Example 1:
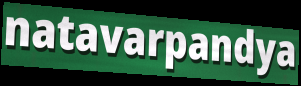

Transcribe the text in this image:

natavarpandya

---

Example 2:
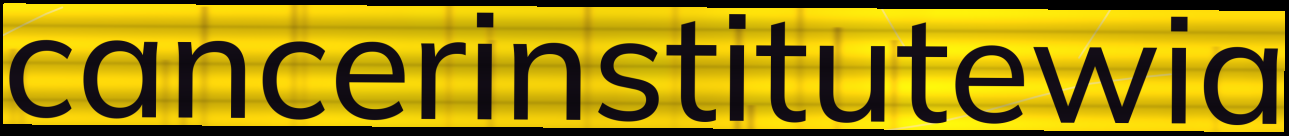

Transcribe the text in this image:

cancerinstitutewia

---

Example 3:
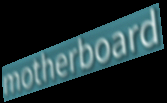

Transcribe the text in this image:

motherboard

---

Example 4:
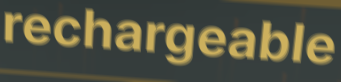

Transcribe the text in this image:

rechargeable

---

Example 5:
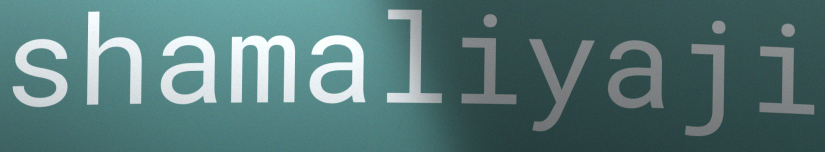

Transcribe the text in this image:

shamaliyaji